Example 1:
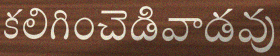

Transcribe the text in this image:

కలిగించెడివాడవు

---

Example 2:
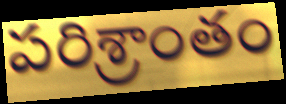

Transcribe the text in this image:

పరిశ్రాంతం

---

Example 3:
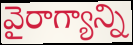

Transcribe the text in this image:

వైరాగ్యాన్ని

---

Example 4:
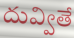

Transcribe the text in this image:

దువ్వితే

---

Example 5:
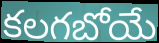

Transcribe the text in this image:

కలగబోయే